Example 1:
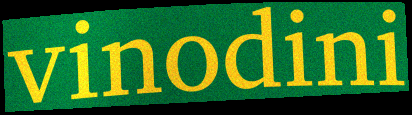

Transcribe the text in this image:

vinodini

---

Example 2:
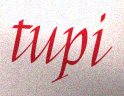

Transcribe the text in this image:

tupi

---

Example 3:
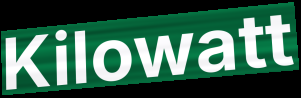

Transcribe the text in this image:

Kilowatt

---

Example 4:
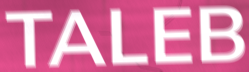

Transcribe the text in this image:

TALEB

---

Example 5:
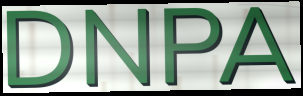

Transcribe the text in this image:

DNPA